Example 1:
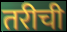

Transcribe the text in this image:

तरीची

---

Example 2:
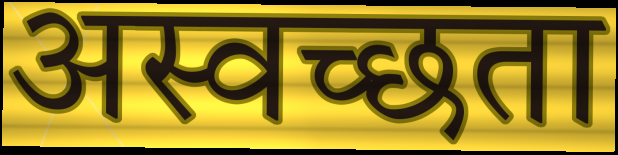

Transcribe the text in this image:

अस्वच्छता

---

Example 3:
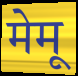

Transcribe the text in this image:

मेमू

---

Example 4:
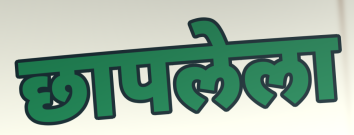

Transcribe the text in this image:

छापलेला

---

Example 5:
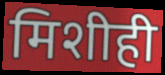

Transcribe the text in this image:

मिशीही